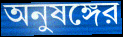
অনুষঙ্গের